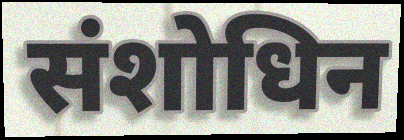
संशोधिन